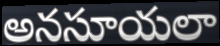
అనసూయలా